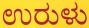
ಉರುಳು